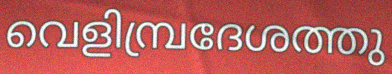
വെളിമ്പ്രദേശത്തു